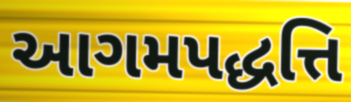
આગમપદ્ધત્તિ